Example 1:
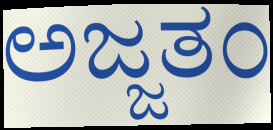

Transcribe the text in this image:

ಅಜ್ಜತಂ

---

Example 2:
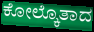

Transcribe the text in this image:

ಕೋಲ್ಕೊತಾದ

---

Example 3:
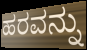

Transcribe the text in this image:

ಹರವನ್ನು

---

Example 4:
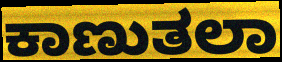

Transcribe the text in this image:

ಕಾಣುತಲಾ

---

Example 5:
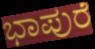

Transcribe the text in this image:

ಭಾಪುರೆ